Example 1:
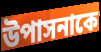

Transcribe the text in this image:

উপাসনাকে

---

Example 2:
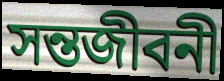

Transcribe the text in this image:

সন্তজীবনী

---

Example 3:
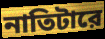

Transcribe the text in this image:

নাতিটারে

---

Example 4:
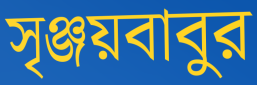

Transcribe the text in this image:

সৃঞ্জয়বাবুর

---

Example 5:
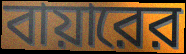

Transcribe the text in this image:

বায়ারের